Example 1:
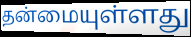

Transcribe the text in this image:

தன்மையுள்ளது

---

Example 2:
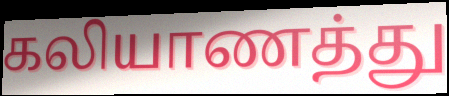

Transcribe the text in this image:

கலியாணத்து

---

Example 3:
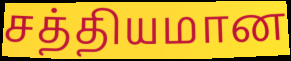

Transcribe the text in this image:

சத்தியமான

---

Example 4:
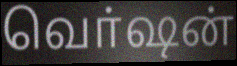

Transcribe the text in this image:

வெர்ஷன்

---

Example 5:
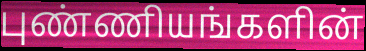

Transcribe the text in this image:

புண்ணியங்களின்